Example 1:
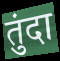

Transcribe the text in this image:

तुंदा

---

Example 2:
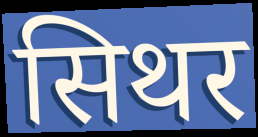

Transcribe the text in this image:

सिथर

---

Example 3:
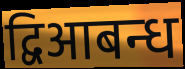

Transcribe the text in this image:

द्विआबन्ध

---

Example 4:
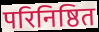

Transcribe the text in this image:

परिनिष्ठित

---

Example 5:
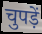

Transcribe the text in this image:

चुपड़ें